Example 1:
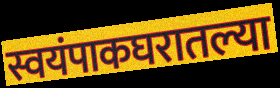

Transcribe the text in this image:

स्वयंपाकघरातल्या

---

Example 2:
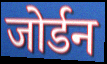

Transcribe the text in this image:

जोर्डन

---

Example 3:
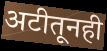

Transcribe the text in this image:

अटीतूनही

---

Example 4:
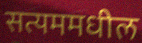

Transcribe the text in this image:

सत्यममधील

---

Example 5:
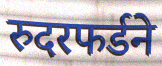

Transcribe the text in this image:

रुदरफर्डने